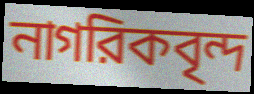
নাগরিকবৃন্দ